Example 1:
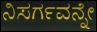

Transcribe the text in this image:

ನಿಸರ್ಗವನ್ನೇ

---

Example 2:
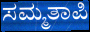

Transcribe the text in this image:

ಸಮ್ಮತಾಪಿ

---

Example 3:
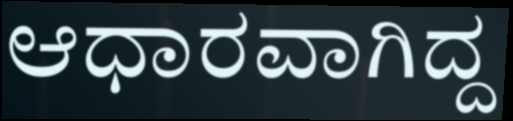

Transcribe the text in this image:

ಆಧಾರವಾಗಿದ್ದ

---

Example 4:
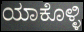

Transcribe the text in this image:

ಯಾಕೊಳ್ಳಿ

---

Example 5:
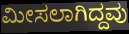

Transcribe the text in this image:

ಮೀಸಲಾಗಿದ್ದವು